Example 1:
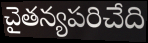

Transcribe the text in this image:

చైతన్యపరిచేది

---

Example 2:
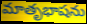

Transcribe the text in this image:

మాతృభాషను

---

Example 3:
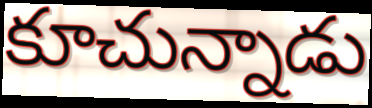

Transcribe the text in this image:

కూచున్నాడు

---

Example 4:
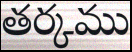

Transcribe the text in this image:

తర్కము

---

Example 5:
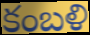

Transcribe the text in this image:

కంబళి